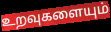
உறவுகளையும்